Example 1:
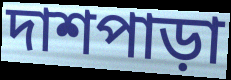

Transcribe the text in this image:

দাশপাড়া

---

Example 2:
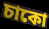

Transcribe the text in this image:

চাকো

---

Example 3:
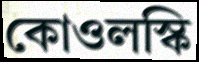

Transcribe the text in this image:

কোওলস্কি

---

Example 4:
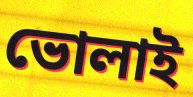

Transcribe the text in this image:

ভোলাই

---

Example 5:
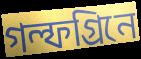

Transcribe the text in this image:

গল্ফগ্রিনে